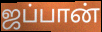
ஜப்பான்